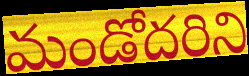
మండోదరిని